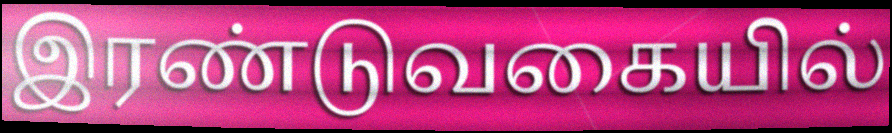
இரண்டுவகையில்